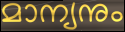
മാന്യനും